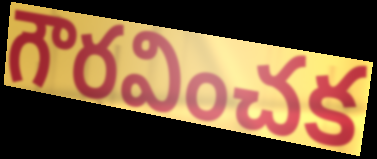
గౌరవించక